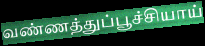
வண்ணத்துப்பூச்சியாய்